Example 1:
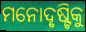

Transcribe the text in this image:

ମନୋଦୃଷ୍ଟିକୁ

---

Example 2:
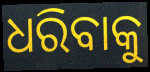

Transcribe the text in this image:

ଧରିବାକୁ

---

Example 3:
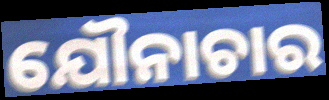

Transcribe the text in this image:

ଯୌନାଚାର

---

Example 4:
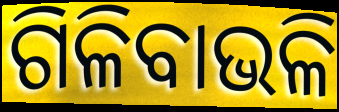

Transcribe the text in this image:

ଗିଳିବାଭଳି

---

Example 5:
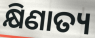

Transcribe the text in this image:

କ୍ଷିଣାତ୍ୟ